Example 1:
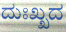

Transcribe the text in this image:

ದುಃಖ್ಖದ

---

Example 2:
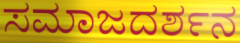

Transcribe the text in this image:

ಸಮಾಜದರ್ಶನ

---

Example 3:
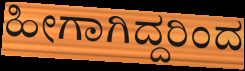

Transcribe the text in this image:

ಹೀಗಾಗಿದ್ದರಿಂದ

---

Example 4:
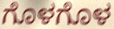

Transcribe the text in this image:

ಗೊಳಗೊಳ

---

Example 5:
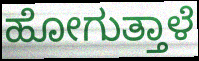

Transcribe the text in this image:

ಹೋಗುತ್ತಾಳೆ